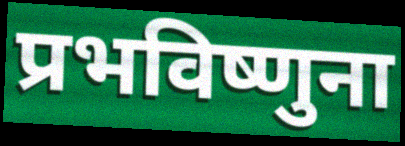
प्रभविष्णुना